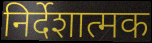
निर्देशात्मक